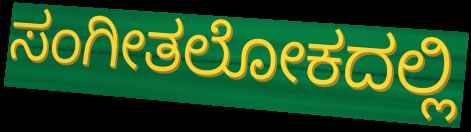
ಸಂಗೀತಲೋಕದಲ್ಲಿ